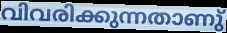
വിവരിക്കുന്നതാണു്